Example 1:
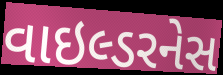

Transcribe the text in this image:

વાઇલ્ડરનેસ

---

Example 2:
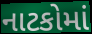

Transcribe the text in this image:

નાટકોમાં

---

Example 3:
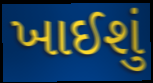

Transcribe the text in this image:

ખાઈશું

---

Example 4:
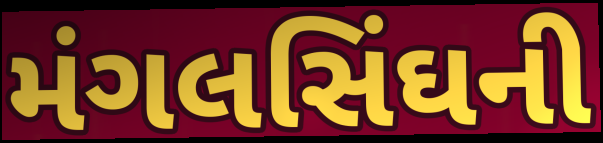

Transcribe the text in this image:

મંગલસિંઘની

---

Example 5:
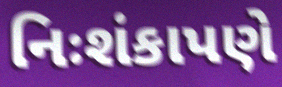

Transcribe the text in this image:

નિઃશંકાપણે